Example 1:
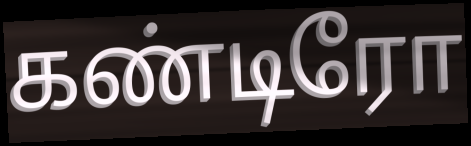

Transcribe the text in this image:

கண்டிரோ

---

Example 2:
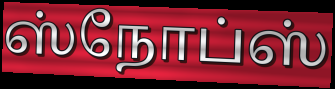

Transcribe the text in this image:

ஸ்நோப்ஸ்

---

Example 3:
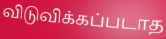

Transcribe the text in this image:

விடுவிக்கப்படாத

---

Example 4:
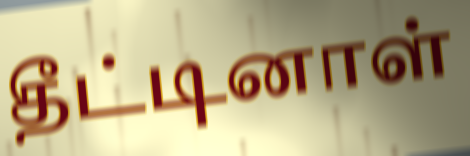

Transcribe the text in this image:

தீட்டினாள்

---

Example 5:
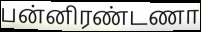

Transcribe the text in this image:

பன்னிரண்டணா